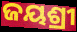
ଜୟଶ୍ରୀ